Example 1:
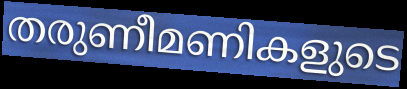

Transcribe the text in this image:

തരുണീമണികളുടെ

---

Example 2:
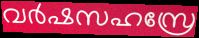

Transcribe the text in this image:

വർഷസഹസ്രേ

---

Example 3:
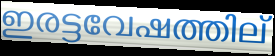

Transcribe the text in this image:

ഇരട്ടവേഷത്തില്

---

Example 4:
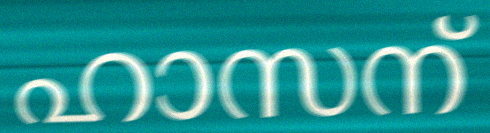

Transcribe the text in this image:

ഹാസന്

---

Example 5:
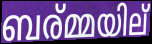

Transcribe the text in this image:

ബര്മ്മയില്